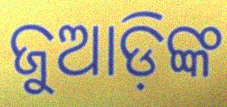
ଜୁଆଡ଼ିଙ୍କ